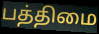
பத்திமை